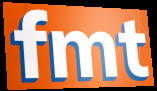
fmt